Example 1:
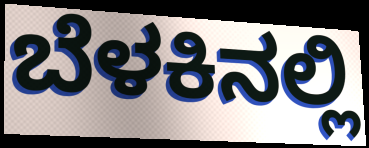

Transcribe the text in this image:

ಬೆಳಕಿನಲ್ಲಿ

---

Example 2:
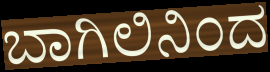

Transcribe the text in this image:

ಬಾಗಿಲಿನಿಂದ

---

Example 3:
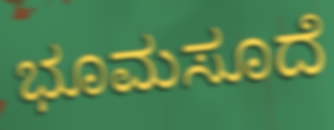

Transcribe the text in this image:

ಭೂಮಸೂದೆ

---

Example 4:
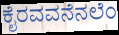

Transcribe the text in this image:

ಕೈರವವನೆನಲೆಂ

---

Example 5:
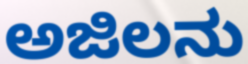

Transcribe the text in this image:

ಅಜಿಲನು